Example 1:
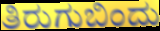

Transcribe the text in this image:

ತಿರುಗುಬಿಂದು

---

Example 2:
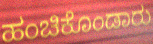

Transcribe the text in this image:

ಹಂಚಿಕೊಂಡಾರು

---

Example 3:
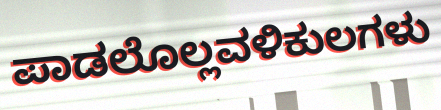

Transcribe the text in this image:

ಪಾಡಲೊಲ್ಲವಳಿಕುಲಗಳು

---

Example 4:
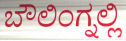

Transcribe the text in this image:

ಬೌಲಿಂಗ್ನಲ್ಲಿ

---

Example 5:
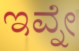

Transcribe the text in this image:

ಇವ್ನೇ